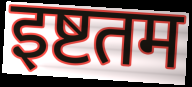
इष्टतम